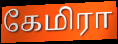
கேமிரா